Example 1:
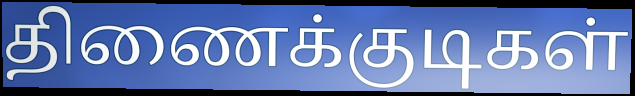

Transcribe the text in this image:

திணைக்குடிகள்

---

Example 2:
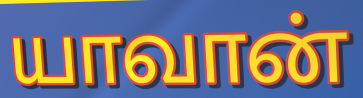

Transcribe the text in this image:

யாவான்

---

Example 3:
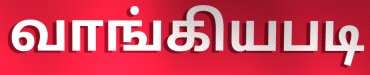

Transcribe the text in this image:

வாங்கியபடி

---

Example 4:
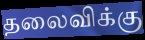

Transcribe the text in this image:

தலைவிக்கு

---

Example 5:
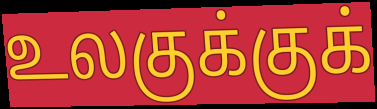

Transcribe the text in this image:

உலகுக்குக்